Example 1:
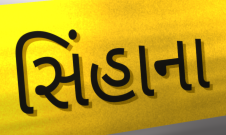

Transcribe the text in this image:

સિંહાના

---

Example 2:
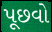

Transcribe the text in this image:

પૂછવો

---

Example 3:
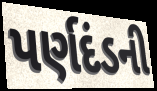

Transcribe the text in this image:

પર્ણદંડની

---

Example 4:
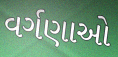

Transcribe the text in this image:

વર્ગણાઓ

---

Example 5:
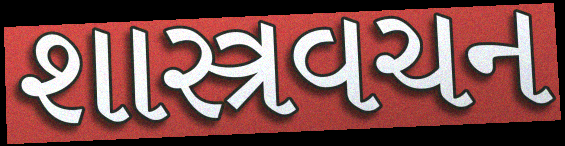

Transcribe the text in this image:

શાસ્ત્રવચન